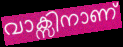
വാക്സിനാണ്